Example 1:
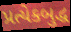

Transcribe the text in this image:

પ્રત્યેકબુદ્ધ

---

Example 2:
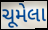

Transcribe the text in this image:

ચૂમેલા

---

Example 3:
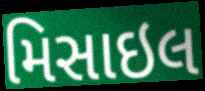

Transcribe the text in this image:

મિસાઇલ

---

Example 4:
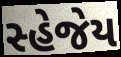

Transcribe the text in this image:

સ્હેજેય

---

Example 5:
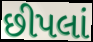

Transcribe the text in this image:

છીપલાં